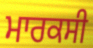
ਮਾਰਕਸੀ